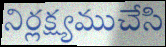
నిర్లక్ష్యముచేసి